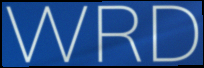
WRD